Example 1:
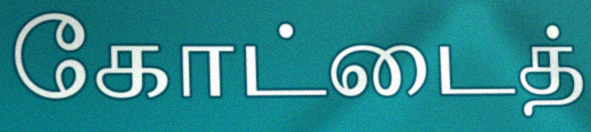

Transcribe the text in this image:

கோட்டைத்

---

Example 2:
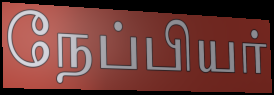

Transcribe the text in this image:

நேப்பியர்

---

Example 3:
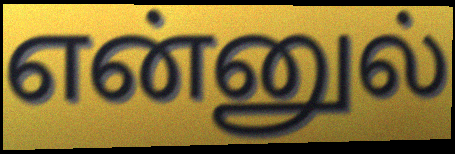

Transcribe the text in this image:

என்னுல்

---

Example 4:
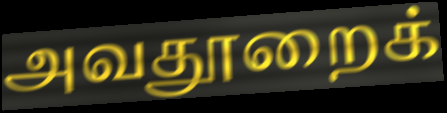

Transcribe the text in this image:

அவதூறைக்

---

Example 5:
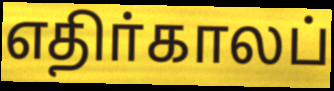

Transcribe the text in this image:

எதிர்காலப்